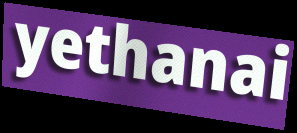
yethanai